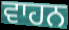
ਵਾਹਨ